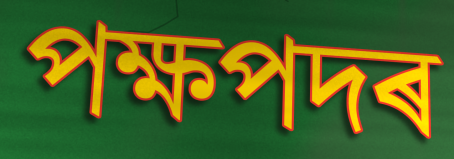
পক্ষপদৰ